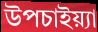
উপচাইয়্যা